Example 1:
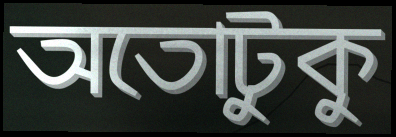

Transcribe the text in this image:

অতোটুকু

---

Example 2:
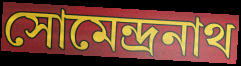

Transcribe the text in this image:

সোমেন্দ্রনাথ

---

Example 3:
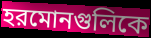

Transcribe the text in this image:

হরমোনগুলিকে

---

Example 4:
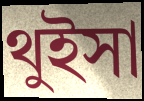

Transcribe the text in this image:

থুইসা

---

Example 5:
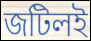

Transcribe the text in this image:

জটিলই